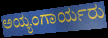
ಅಯ್ಯಂಗಾರ್ಯರು